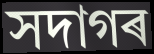
সদাগৰ